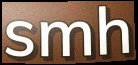
smh